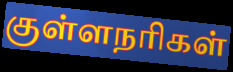
குள்ளநரிகள்